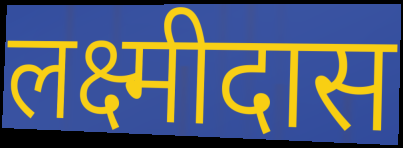
लक्ष्मीदास